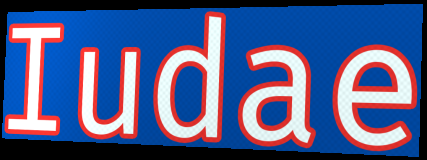
Iudae